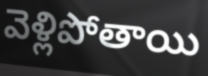
వెళ్లిపోతాయి